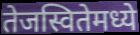
तेजस्वितेमध्ये